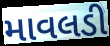
માવલડી